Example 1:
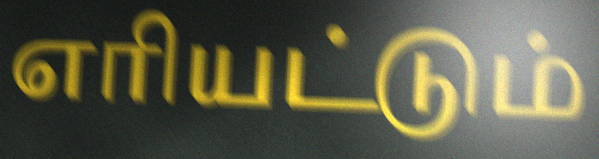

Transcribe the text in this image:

எரியட்டும்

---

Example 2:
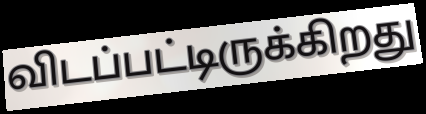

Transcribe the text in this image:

விடப்பட்டிருக்கிறது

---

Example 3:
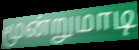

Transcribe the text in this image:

மூன்றுமாடி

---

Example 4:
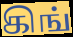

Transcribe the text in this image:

கிங்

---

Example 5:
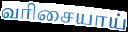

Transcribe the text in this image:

வரிசையாய்